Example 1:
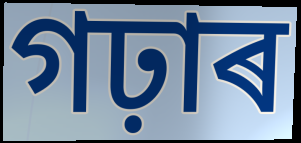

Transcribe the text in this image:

গঢ়াৰ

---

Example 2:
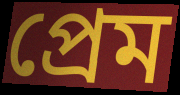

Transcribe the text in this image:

প্ৰেম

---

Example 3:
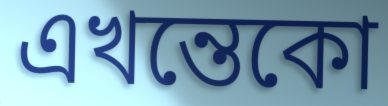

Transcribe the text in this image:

এখন্তেকো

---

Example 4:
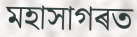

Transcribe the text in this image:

মহাসাগৰত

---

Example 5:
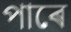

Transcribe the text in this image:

পাৰে